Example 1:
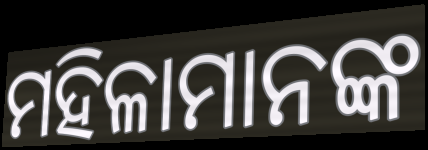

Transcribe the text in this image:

ମହିଳାମାନଙ୍କ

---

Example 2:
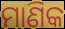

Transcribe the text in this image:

ମାଣିକ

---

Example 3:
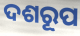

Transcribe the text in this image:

ଦଶରୂପ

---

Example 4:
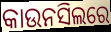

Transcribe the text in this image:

କାଉନସିଲରେ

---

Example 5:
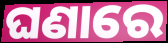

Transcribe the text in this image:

ଘଣାରେ